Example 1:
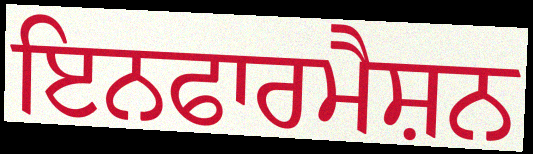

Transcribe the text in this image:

ਇਨਫਾਰਮੈਸ਼ਨ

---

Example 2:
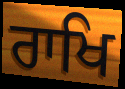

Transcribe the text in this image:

ਰਾਖਿ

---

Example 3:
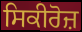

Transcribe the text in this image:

ਸਿਕੀਰੋਜ਼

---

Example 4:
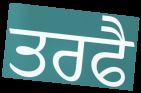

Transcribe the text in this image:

ਤਰਫੈ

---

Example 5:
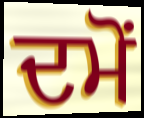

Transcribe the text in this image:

ਦਮੋਂ